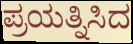
ಪ್ರಯತ್ನಿಸಿದ